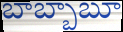
బాబ్బాబూ